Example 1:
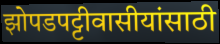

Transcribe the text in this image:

झोपडपट्टीवासीयांसाठी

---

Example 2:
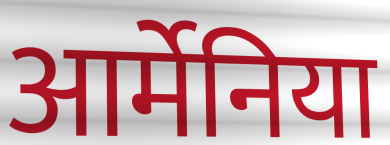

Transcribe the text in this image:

आर्मेनिया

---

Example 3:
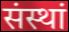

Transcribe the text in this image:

संस्थां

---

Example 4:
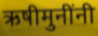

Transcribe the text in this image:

ऋषीमुनींनी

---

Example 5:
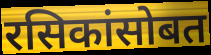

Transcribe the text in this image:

रसिकांसोबत